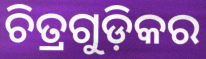
ଚିତ୍ରଗୁଡ଼ିକର